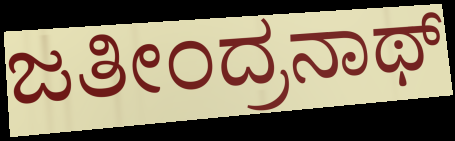
ಜತೀಂದ್ರನಾಥ್